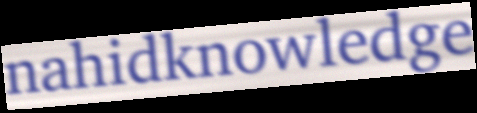
nahidknowledge